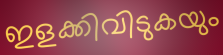
ഇളക്കിവിടുകയും